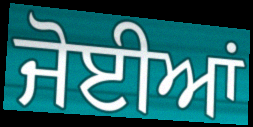
ਜੋਈਆਂ